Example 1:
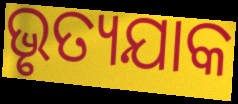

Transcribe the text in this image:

ଭୃତ୍ୟଯାକ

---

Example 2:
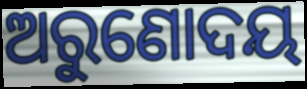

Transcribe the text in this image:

ଅରୁଣୋଦୟ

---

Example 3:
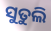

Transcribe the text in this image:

ସୁତୁଲି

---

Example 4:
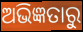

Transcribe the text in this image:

ଅଭିଜ୍ଞତାରୁ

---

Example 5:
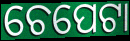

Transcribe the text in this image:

ଚେପେଟା